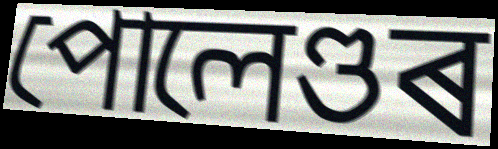
পোলেণ্ডৰ